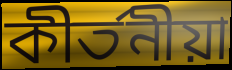
কীর্তনীয়া